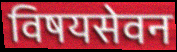
विषयसेवन